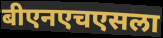
बीएनएचएसला